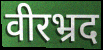
वीरभ्रद